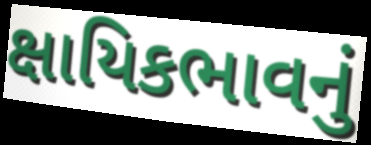
ક્ષાયિકભાવનું